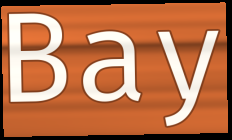
Bay